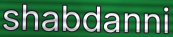
shabdanni